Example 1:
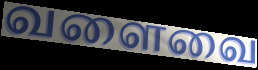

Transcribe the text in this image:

வளைவை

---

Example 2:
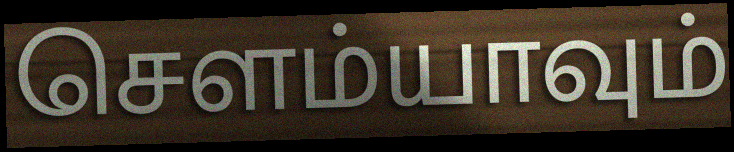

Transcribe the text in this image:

சௌம்யாவும்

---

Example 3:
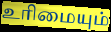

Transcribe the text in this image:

உரிமையும்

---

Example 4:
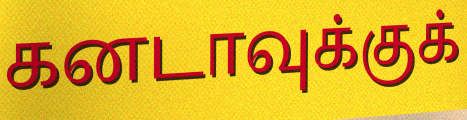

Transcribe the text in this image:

கனடாவுக்குக்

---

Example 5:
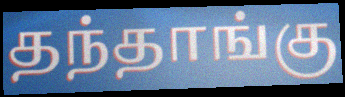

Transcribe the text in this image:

தந்தாங்கு